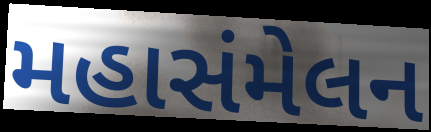
મહાસંમેલન